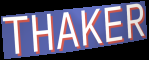
THAKER